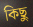
কিছু